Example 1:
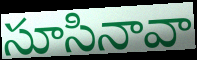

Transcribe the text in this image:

సూసినావా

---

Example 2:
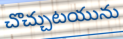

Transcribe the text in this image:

చొచ్చుటయును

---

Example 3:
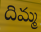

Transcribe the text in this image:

దిమ్మ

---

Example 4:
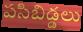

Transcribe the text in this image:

పసిబిడ్డలు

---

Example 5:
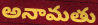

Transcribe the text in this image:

అనామతు